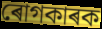
ৰোগকাৰক